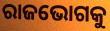
ରାଜଭୋଗକୁ